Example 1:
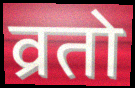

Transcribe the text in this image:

व्रतो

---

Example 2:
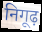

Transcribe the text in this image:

निगूढ़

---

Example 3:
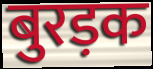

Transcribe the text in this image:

बुरड़क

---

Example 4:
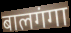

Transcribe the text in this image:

बालगंगा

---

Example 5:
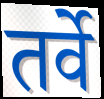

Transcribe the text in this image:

तर्वे